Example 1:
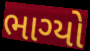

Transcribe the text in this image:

ભાગ્યો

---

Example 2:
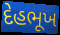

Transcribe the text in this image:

દેહભૂખ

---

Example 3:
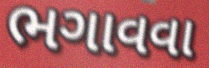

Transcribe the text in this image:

ભગાવવા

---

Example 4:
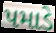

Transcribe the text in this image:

પમાડે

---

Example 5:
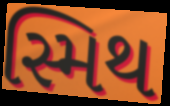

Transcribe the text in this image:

સ્મિથ